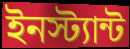
ইনস্ট্যান্ট